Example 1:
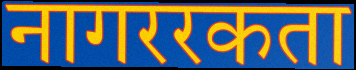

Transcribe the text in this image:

नागररकता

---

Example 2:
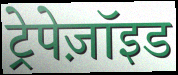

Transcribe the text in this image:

ट्रेपेज़ॉइड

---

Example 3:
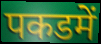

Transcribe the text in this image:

पकडमें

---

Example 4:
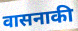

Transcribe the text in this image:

वासनाकी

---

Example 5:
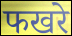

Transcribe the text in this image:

फखरे